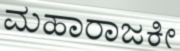
ಮಹಾರಾಜಕೀ